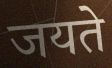
जयते